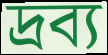
দ্রব্য